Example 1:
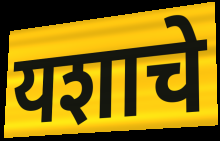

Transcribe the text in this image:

यशाचे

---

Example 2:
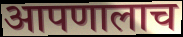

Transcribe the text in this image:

आपणालाच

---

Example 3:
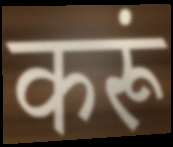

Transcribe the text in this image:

करूं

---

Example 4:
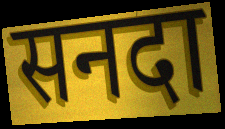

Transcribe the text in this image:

सनदा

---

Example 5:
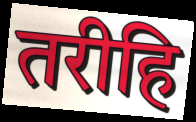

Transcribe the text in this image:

तरीहि